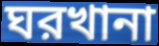
ঘরখানা